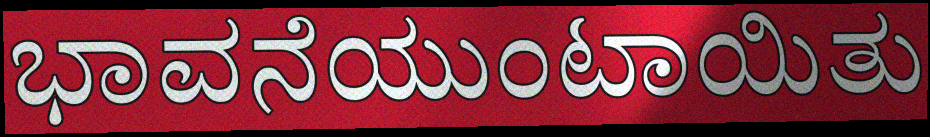
ಭಾವನೆಯುಂಟಾಯಿತು